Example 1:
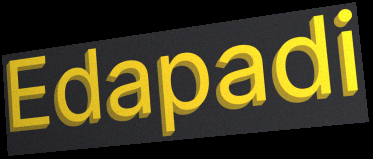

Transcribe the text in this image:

Edapadi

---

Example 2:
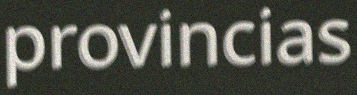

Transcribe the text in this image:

provincias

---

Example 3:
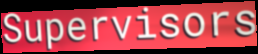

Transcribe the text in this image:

Supervisors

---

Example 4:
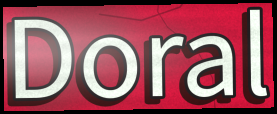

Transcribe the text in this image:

Doral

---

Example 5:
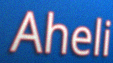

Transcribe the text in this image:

Aheli